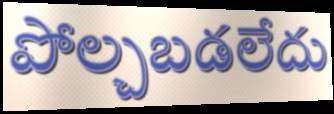
పోల్చబడలేదు